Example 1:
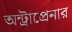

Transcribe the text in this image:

অন্ট্রাপ্রেনার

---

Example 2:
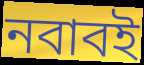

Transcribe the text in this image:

নবাবই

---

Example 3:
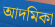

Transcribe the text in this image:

আদমিকা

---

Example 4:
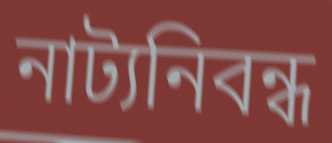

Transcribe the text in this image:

নাট্যনিবন্ধ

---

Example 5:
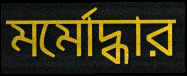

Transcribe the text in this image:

মর্মোদ্ধার